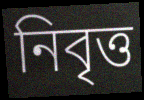
নিবৃত্ত